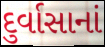
દુર્વાસાનાં